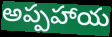
అప్పహాయ